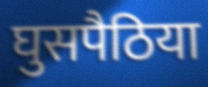
घुसपैठिया